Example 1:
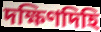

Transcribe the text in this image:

দক্ষিণদিহি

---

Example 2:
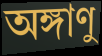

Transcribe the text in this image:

অঙ্গাণু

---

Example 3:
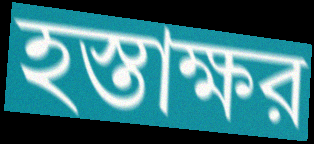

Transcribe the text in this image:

হস্তাক্ষর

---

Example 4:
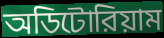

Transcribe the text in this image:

অডিটোরিয়াম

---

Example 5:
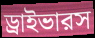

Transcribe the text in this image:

ড্রাইভারস